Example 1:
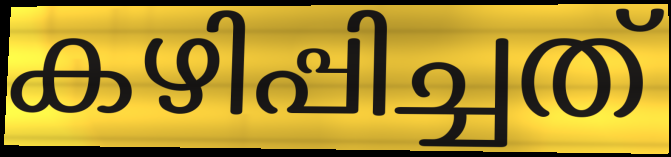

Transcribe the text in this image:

കഴിപ്പിച്ചത്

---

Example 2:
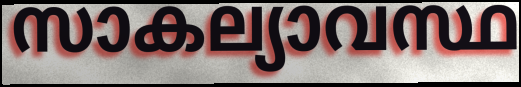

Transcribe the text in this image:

സാകല്യാവസ്ഥ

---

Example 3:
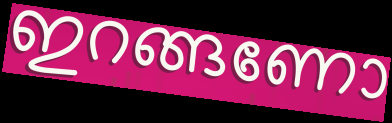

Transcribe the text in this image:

ഇറങ്ങണോ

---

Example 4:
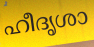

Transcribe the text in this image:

ഹീദൃശാ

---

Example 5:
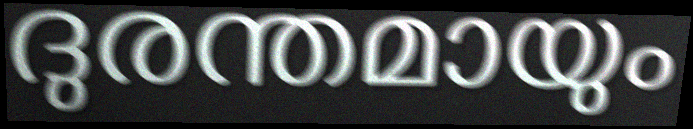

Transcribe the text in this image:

ദുരന്തമായും